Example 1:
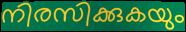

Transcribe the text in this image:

നിരസിക്കുകയും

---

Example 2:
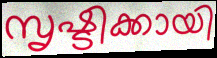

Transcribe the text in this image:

സൃഷ്ടിക്കായി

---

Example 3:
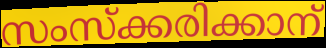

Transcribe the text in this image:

സംസ്ക്കരിക്കാന്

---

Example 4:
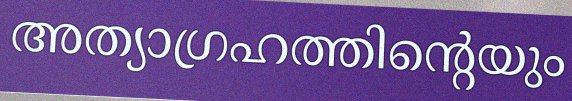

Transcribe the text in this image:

അത്യാഗ്രഹത്തിന്റെയും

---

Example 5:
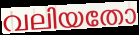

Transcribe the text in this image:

വലിയതോ